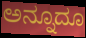
ಅನ್ನೂದೂ